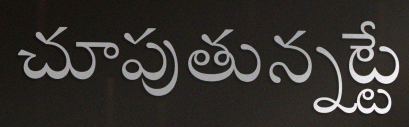
చూపుతున్నట్టే